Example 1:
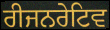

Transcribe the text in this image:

ਰੀਜਨਰੇਟਿਵ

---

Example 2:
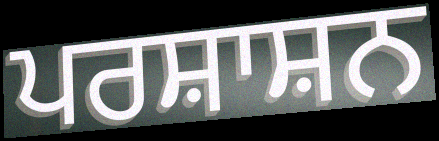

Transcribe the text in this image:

ਪਰਸ਼ਾਸ਼ਨ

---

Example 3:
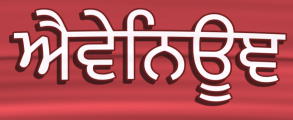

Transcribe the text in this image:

ਐਵੇਨਿਊਞ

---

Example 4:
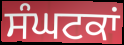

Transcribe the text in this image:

ਸੰਘਟਕਾਂ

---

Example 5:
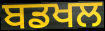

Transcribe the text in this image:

ਬਡਖਲ